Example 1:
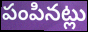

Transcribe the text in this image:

పంపినట్లు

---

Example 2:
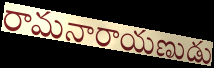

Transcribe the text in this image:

రామనారాయణుడు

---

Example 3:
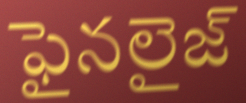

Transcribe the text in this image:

ఫైనలైజ్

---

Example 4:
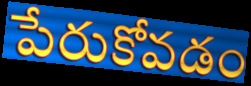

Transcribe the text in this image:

పేరుకోవడం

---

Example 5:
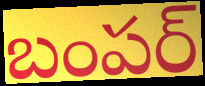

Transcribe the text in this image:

బంపర్